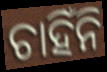
ଚାହିଁନି